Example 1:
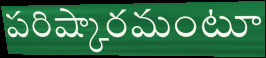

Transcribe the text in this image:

పరిష్కారమంటూ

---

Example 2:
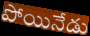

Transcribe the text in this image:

పోయినేడు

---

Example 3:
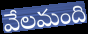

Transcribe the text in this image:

వేలమంది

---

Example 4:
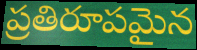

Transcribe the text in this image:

ప్రతిరూపమైన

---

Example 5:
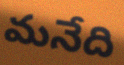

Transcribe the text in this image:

మనేది